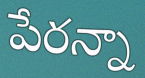
పేరన్నా